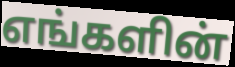
எங்களின்